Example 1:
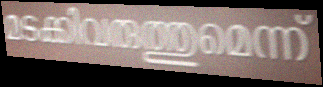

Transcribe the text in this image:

മടക്കിവരുത്തുമെന്ന്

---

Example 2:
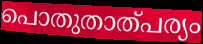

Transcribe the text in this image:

പൊതുതാത്പര്യം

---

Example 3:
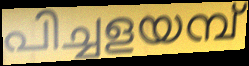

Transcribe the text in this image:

പിച്ചളയമ്പ്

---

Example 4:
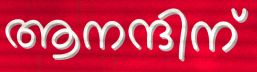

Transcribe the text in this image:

ആനന്ദിന്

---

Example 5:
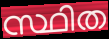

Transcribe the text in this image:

സ്ഥിത